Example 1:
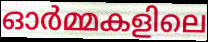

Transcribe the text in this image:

ഓർമ്മകളിലെ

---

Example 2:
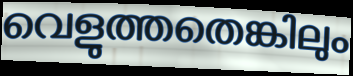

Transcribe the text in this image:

വെളുത്തതെങ്കിലും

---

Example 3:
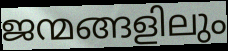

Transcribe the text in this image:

ജന്മങ്ങളിലും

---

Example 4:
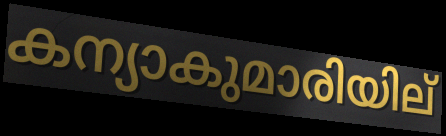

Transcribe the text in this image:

കന്യാകുമാരിയില്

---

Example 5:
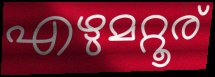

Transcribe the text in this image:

എഴുമറ്റൂര്